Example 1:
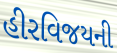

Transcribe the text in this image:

હીરવિજયની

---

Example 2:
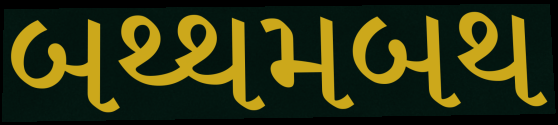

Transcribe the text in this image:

બથ્થમબથ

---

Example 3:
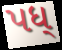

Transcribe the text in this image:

પધ્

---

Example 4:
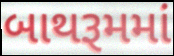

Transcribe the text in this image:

બાથરૂમમાં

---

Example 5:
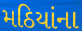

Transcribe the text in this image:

મઠિયાંના